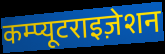
कम्प्यूटराइज़ेशन